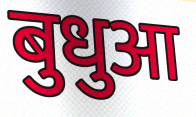
बुधुआ